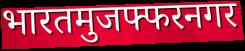
भारतमुजफ्फरनगर